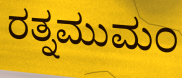
ರತ್ನಮುಮಂ